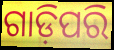
ଗାଡ଼ିପରି